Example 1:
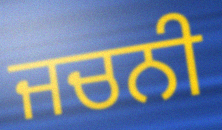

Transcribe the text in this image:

ਜਚਨੀ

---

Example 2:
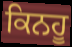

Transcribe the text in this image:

ਕਿਨਹੂ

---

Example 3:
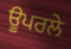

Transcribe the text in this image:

ਊਪਰਲੇ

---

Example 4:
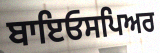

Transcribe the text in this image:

ਬਾਇਓਸਪਿਅਰ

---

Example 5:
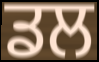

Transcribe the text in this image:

ਡਲ